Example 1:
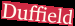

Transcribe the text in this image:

Duffield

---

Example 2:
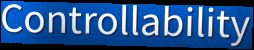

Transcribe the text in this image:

Controllability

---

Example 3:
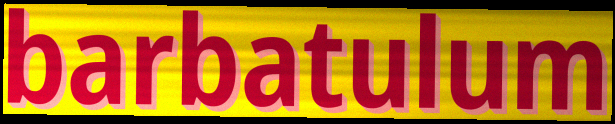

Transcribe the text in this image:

barbatulum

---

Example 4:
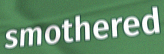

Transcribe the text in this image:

smothered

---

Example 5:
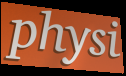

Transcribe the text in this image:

physi